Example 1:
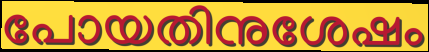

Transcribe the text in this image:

പോയതിനുശേഷം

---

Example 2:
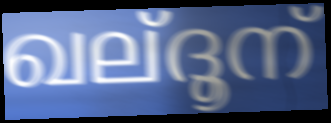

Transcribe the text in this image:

ഖല്ദൂന്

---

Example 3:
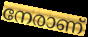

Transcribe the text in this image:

നേരാണ്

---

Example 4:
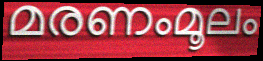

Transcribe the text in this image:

മരണംമൂലം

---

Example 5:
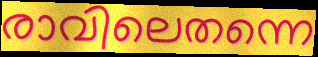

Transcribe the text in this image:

രാവിലെതന്നെ